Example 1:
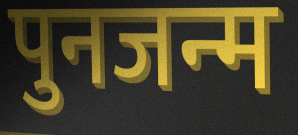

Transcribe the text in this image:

पुनजन्म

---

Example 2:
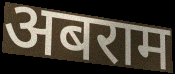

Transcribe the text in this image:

अबराम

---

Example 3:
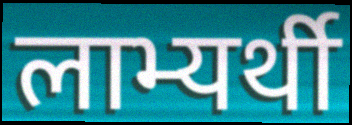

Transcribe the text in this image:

लाभ्यर्थी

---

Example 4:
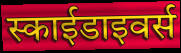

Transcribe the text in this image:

स्काईडाइवर्स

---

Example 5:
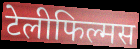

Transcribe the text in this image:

टेलीफिल्मस